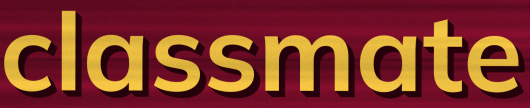
classmate